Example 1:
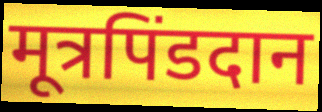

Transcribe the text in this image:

मूत्रपिंडदान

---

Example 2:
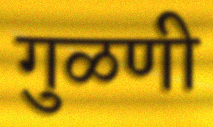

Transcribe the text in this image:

गुळणी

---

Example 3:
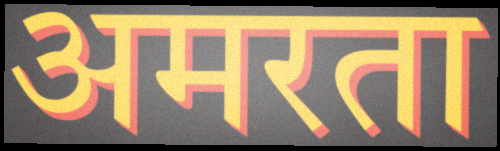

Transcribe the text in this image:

अमरता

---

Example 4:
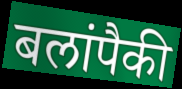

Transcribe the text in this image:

बलांपैकी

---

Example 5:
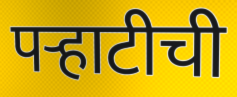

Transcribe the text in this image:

पऱ्हाटीची